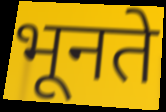
भूनते